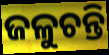
ଜଳୁଚନ୍ତି